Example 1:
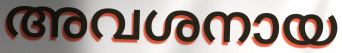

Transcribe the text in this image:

അവശനായ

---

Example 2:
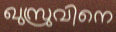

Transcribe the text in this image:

ഖുസ്രുവിനെ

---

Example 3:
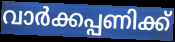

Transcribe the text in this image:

വാർക്കപ്പണിക്ക്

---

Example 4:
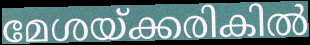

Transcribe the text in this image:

മേശയ്ക്കരികിൽ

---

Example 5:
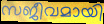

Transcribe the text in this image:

സജീവമായി